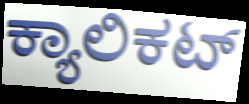
ಕ್ಯಾಲಿಕಟ್